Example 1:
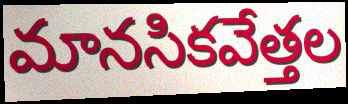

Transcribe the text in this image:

మానసికవేత్తల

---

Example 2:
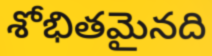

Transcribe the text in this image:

శోభితమైనది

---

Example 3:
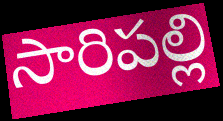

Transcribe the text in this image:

సారిపల్లి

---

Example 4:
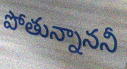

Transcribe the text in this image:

పోతున్నాననీ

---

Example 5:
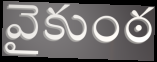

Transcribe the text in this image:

వైకుంఠ